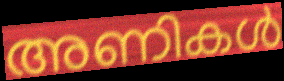
അണികൾ